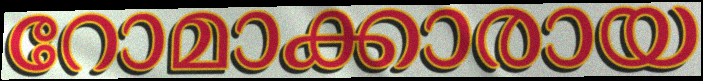
റോമാക്കാരായ